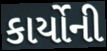
કાર્યોની